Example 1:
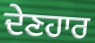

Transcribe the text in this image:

ਦੇਣਹਾਰ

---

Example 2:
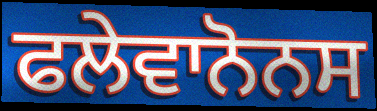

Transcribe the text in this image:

ਫਲੇਵਾਨੋਨਸ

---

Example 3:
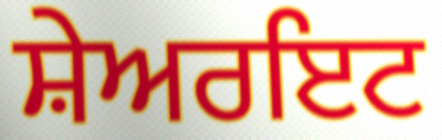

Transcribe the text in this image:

ਸ਼ੇਅਰਇਟ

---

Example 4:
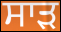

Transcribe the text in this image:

ਸਾਡ਼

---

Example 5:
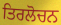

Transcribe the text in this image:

ਤਿਰਲੋਚਨ